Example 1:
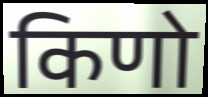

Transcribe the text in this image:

किणो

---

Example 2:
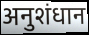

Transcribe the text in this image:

अनुशंधान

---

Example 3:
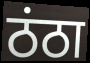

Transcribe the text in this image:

ठंठा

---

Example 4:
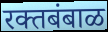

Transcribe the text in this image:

रक्तबंबाळ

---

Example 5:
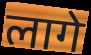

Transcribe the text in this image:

लागे